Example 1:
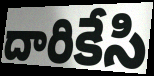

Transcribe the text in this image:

దారికేసి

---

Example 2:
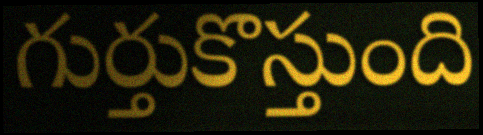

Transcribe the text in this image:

గుర్తుకొస్తుంది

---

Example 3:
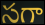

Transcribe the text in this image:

సగా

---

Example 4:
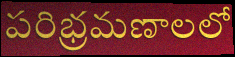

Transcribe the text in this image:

పరిభ్రమణాలలో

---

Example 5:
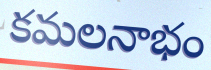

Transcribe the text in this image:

కమలనాభం